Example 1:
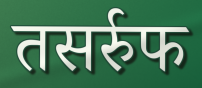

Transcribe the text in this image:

तसर्रुफ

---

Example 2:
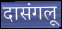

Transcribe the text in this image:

दासंगलू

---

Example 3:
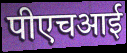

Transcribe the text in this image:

पीएचआई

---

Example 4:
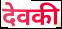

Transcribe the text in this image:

देवकी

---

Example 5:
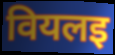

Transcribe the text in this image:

वियलइ